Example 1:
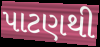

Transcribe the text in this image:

પાટણથી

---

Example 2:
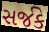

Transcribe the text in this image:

સર્જકે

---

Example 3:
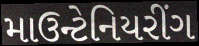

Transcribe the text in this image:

માઉન્ટેનિયરીંગ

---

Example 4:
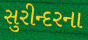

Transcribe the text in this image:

સુરીન્દરના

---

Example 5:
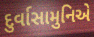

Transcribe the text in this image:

દુર્વાસામુનિએ